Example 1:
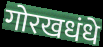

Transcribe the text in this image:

गोरखधंधे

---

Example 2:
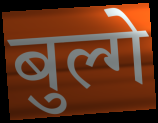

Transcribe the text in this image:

बुल्गे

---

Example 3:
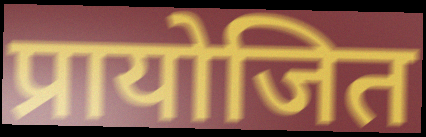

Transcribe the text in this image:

प्रायोजित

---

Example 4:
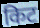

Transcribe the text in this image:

किट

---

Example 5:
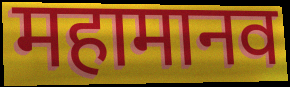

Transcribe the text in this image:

महामानव